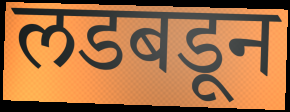
लडबडून